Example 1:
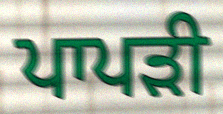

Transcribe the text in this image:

ਪਾਪੜੀ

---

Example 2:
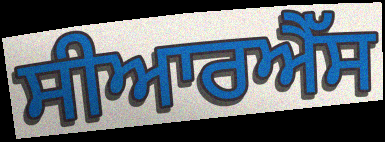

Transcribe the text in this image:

ਸੀਆਰਐੱਸ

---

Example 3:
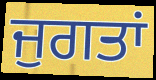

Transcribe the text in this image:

ਜੁਗਤਾਂ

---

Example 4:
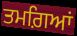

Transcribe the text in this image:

ਤਮਗ਼ਿਆਂ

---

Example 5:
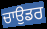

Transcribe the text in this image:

ਚਾਉਡਰ